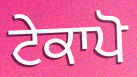
ਟੇਕਾਪੋ